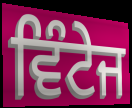
ਵਿੰਟੇਜ